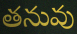
తనువు